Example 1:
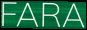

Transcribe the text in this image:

FARA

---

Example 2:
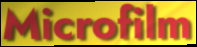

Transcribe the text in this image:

Microfilm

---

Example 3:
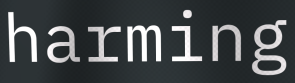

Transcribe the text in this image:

harming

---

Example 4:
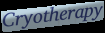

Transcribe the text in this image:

Cryotherapy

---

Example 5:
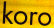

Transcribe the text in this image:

koro